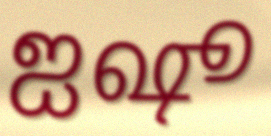
ஐஷூ